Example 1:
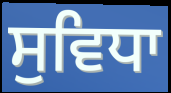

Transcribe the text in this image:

ਸੁਵਿਧਾ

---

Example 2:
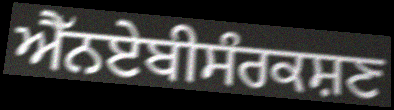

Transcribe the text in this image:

ਐੱਨਏਬੀਸੰਰਕਸ਼ਣ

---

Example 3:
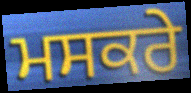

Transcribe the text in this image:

ਮਸਕਰੇ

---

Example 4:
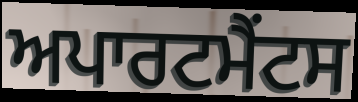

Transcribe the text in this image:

ਅਪਾਰਟਮੈਂਟਸ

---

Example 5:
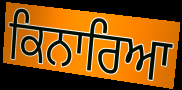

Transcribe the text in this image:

ਕਿਨਾਰਿਆ